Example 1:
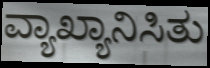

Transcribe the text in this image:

ವ್ಯಾಖ್ಯಾನಿಸಿತು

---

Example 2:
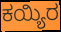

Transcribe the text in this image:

ಕಯ್ಯಿರ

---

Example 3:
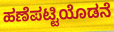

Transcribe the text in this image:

ಹಣೆಪಟ್ಟಿಯೊಡನೆ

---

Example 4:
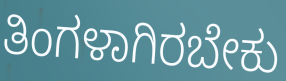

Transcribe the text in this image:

ತಿಂಗಳಾಗಿರಬೇಕು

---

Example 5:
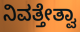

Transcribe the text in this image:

ನಿವತ್ತೇತ್ವಾ